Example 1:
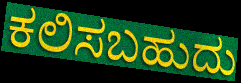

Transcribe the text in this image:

ಕಲಿಸಬಹುದು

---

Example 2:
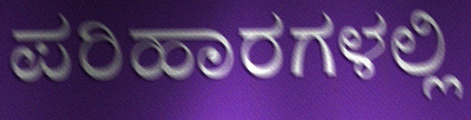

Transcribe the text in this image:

ಪರಿಹಾರಗಳಲ್ಲಿ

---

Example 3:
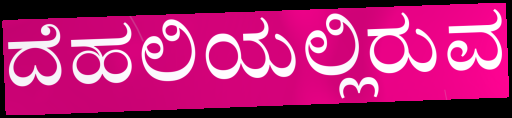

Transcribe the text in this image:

ದೆಹಲಿಯಲ್ಲಿರುವ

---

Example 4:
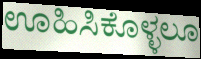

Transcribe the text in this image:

ಊಹಿಸಿಕೊಳ್ಳಲೂ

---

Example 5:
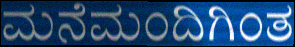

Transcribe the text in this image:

ಮನೆಮಂದಿಗಿಂತ